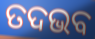
ତଦଭବ